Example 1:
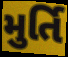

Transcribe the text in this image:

મુર્તિ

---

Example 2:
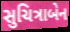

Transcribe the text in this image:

સુચિત્રાબેન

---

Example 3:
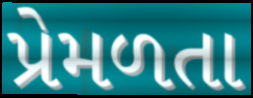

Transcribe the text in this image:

પ્રેમળતા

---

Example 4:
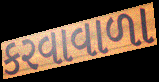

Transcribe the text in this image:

કરવાવાળા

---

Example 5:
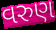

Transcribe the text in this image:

વરુણ